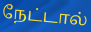
நேட்டால்